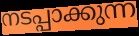
നടപ്പാക്കുന്ന